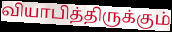
வியாபித்திருக்கும்